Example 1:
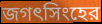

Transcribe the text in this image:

জগৎসিংহের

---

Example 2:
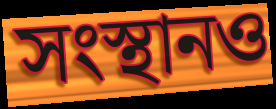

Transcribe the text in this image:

সংস্থানও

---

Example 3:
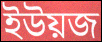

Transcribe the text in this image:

ইউয়জ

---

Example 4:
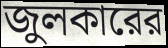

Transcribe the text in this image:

জুলকারের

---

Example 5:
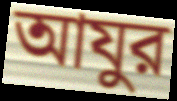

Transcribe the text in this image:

আযুর